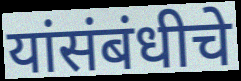
यांसंबंधीचे